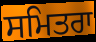
ਸਮਿਤਰਾ